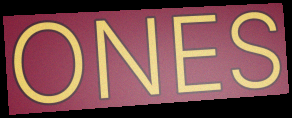
ONES